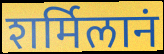
शर्मिलानं